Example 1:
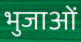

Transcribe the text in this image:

भुजाओं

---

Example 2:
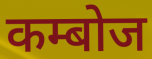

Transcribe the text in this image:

कम्बोज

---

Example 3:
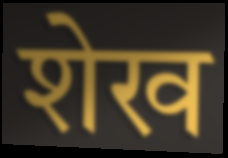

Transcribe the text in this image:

शेख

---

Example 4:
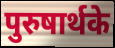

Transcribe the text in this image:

पुरुषार्थके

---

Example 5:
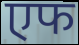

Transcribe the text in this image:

एफ